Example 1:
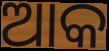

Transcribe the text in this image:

ଆକ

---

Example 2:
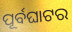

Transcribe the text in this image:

ପୂର୍ବଘାଟର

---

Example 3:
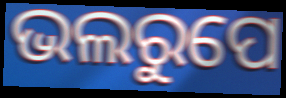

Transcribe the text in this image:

ଭଲରୁପେ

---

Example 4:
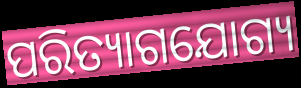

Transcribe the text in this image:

ପରିତ୍ୟାଗଯୋଗ୍ୟ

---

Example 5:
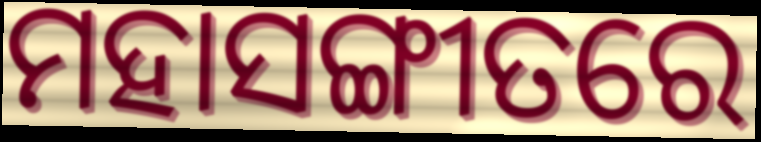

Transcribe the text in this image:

ମହାସଙ୍ଗୀତରେ